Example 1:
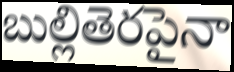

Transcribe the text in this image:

బుల్లితెరపైనా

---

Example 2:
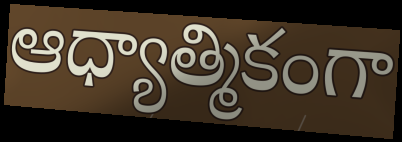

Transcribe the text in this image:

ఆధ్యాత్మికంగా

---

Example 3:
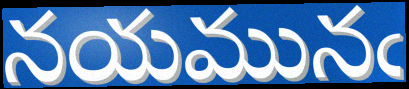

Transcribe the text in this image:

నయమునఁ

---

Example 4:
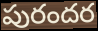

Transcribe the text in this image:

పురందర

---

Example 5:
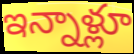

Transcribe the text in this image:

ఇన్నాళ్లూ